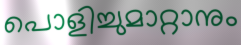
പൊളിച്ചുമാറ്റാനും